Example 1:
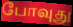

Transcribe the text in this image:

போவுது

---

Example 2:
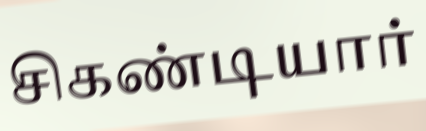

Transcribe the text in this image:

சிகண்டியார்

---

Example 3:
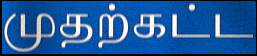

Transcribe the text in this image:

முதற்கட்ட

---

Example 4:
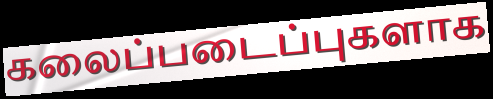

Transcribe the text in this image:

கலைப்படைப்புகளாக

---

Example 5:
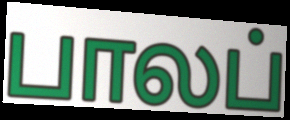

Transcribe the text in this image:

பாலப்